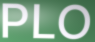
PLO